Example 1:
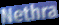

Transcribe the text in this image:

Nethra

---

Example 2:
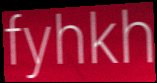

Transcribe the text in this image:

fyhkh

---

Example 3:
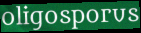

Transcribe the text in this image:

oligosporus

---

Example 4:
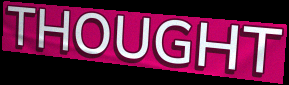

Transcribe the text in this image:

THOUGHT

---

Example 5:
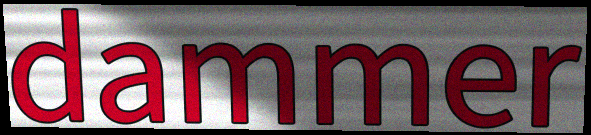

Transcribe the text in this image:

dammer